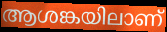
ആശങ്കയിലാണ്